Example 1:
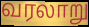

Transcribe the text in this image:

வரலாறு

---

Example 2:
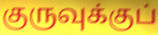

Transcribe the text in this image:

குருவுக்குப்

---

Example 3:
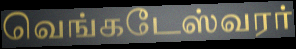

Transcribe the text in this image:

வெங்கடேஸ்வரர்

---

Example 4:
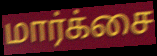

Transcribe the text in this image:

மார்க்சை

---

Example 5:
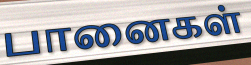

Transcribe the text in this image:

பானைகள்